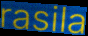
rasila